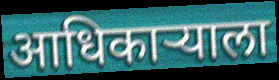
आधिकाऱ्याला